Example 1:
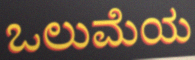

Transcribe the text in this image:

ಒಲುಮೆಯ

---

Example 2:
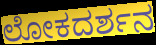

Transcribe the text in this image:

ಲೋಕದರ್ಶನ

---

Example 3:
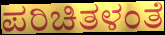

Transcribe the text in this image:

ಪರಿಚಿತಳಂತೆ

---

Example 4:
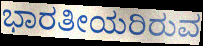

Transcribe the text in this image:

ಭಾರತೀಯರಿರುವ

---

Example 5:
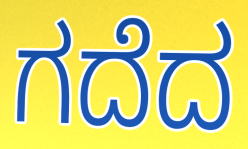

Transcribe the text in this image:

ಗದೆದ